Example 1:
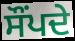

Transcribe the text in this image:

ਸੌਂਪਦੇ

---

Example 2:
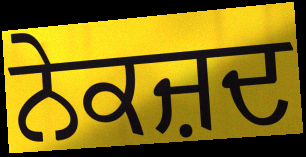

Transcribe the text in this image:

ਨੇਕਜ਼ਦ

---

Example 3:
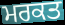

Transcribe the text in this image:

ਮਰਕਤ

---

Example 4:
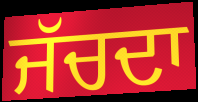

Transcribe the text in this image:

ਜੱਚਦਾ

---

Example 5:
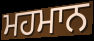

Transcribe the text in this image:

ਮਹਮਾਨ